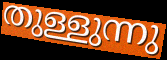
തുള്ളുന്നു